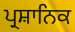
ਪ੍ਰਸ਼ਾਨਿਕ